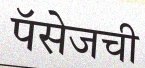
पॅसेजची